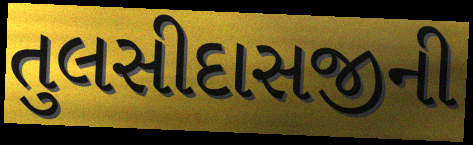
તુલસીદાસજીની